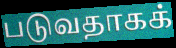
படுவதாகக்